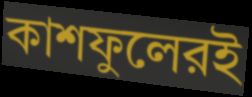
কাশফুলেরই